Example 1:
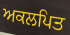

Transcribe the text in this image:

ਅਕਲਪਿਤ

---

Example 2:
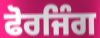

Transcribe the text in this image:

ਫੋਰਜਿੰਗ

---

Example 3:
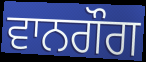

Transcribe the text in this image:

ਵਾਨਗੌਗ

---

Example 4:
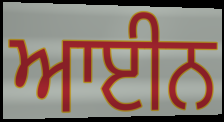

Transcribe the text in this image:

ਆਈਨ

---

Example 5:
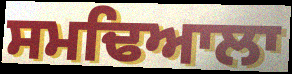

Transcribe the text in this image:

ਸਮਢਿਆਲਾ